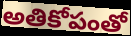
అతికోపంతో